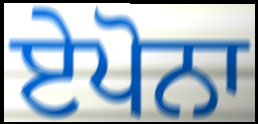
ਏਪੋਨਾ